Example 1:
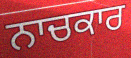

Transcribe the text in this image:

ਨਾਚਕਾਰ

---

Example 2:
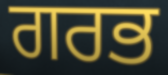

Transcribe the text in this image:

ਗਰਭ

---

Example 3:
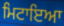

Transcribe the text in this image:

ਮਿਟਾਇਆ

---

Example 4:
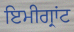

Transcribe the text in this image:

ਇਮੀਗ੍ਰਾਂਟ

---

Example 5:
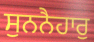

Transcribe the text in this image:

ਸੁਨਨੈਹਾਰੁ